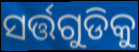
ସର୍ତ୍ତଗୁଡିକୁ